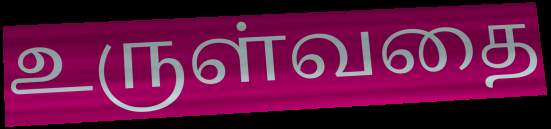
உருள்வதை